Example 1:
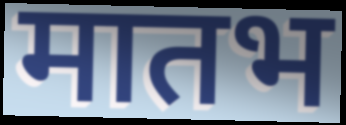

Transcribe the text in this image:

मातभ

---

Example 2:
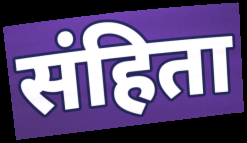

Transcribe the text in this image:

संहिता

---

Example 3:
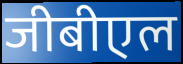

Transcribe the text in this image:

जीबीएल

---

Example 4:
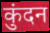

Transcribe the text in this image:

कुंदन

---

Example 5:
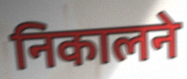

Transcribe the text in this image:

निकालने